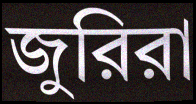
জুরিরা